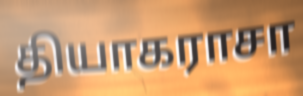
தியாகராசா